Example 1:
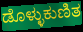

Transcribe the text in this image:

ಡೊಳ್ಳುಕುಣಿತ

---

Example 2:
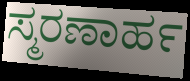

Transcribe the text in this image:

ಸ್ಮರಣಾರ್ಹ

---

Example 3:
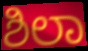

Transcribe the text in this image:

ಶಿಲಾ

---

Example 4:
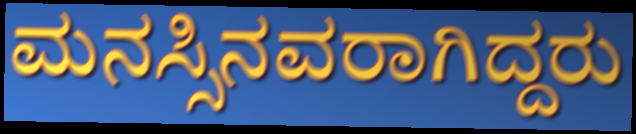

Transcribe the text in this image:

ಮನಸ್ಸಿನವರಾಗಿದ್ದರು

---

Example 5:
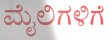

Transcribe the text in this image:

ಮೈಲಿಗಳಿಗೆ